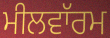
ਮੀਲਵਾੱਰਮ